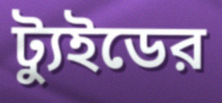
ট্যুইডের